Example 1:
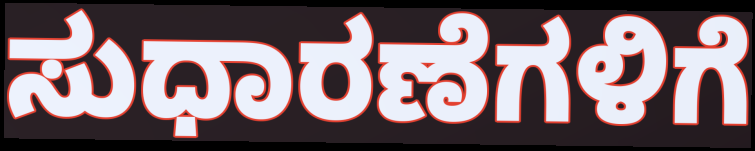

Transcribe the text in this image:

ಸುಧಾರಣೆಗಳಿಗೆ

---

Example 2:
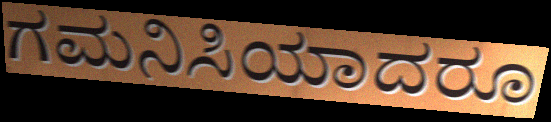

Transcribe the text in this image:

ಗಮನಿಸಿಯಾದರೂ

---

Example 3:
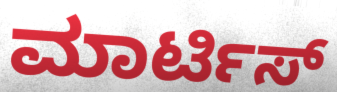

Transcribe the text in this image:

ಮಾರ್ಟಿಸ್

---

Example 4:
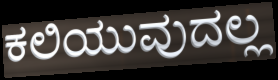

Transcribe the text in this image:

ಕಲಿಯುವುದಲ್ಲ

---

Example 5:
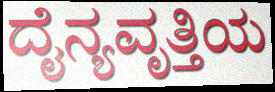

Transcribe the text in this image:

ದೈನ್ಯವೃತ್ತಿಯ